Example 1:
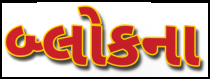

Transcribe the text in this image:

બ્લોકના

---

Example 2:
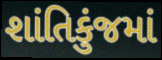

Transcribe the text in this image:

શાંતિકુંજમાં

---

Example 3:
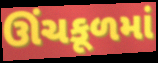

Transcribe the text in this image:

ઊંચકૂળમાં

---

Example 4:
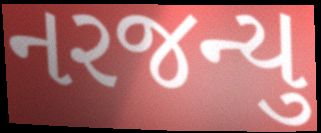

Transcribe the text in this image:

નરજન્યુ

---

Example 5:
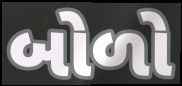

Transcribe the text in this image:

બોળો